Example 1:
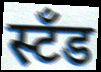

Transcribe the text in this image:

स्टँड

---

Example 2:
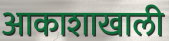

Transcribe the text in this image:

आकाशाखाली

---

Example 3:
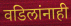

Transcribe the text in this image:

वडिलांनाही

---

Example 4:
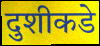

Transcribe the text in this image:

दुशीकडे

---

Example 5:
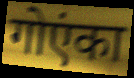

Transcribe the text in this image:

गोएंका